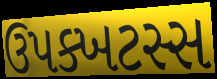
ઉપક્ખટસ્સ